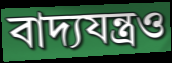
বাদ্যযন্ত্রও